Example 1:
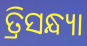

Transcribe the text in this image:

ତ୍ରିସନ୍ଧ୍ୟା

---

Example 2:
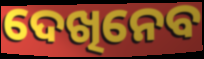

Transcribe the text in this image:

ଦେଖିନେବ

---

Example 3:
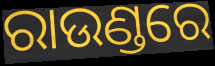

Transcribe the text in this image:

ରାଉଣ୍ଡରେ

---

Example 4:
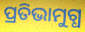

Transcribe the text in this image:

ପ୍ରତିଭାମୁଗ୍ଧ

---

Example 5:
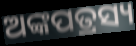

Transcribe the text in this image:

ଅଙ୍କପତ୍ରସ୍ୟ